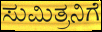
ಸುಮಿತ್ರನಿಗೆ